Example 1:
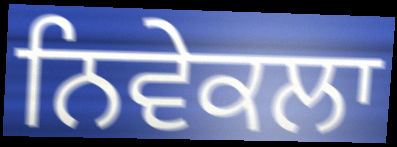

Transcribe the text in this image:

ਨਿਵੇਕਲਾ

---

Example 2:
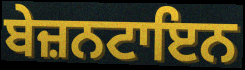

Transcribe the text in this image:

ਬੇਜ਼ਨਟਾਇਨ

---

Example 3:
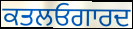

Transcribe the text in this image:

ਕਤਲਓਗਾਰਦ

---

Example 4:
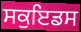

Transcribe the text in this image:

ਸਕੁਇਡਸ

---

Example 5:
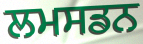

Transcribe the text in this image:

ਲਮਸਡਨ